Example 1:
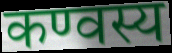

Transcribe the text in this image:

कण्वस्य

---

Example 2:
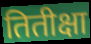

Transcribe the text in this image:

तितीक्षा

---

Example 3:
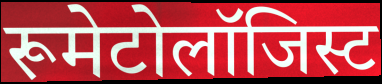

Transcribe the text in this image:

रूमेटोलॉजिस्ट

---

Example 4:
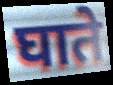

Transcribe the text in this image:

घाते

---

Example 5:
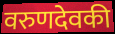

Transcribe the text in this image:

वरुणदेवकी